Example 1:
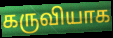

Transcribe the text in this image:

கருவியாக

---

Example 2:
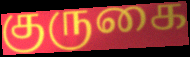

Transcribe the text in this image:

குருகை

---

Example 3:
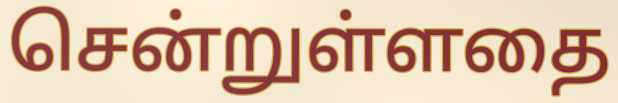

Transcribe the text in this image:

சென்றுள்ளதை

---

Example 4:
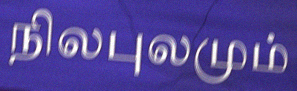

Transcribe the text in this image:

நிலபுலமும்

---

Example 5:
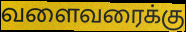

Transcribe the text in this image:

வளைவரைக்கு